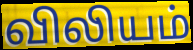
விலியம்